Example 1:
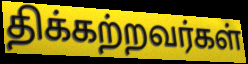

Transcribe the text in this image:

திக்கற்றவர்கள்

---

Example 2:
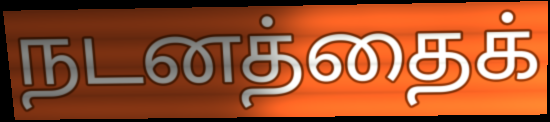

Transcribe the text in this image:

நடனத்தைக்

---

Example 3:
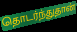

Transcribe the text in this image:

தொடர்ந்துதான்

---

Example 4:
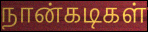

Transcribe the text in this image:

நான்கடிகள்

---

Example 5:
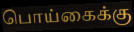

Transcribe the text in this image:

பொய்கைக்கு